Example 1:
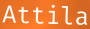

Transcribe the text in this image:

Attila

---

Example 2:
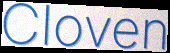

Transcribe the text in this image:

Cloven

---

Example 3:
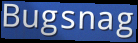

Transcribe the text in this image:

Bugsnag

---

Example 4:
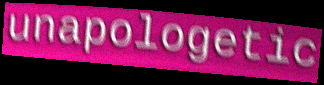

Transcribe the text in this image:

unapologetic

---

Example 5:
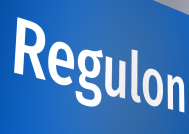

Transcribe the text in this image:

Regulon